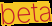
beta